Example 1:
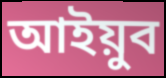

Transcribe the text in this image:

আইয়ুব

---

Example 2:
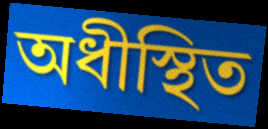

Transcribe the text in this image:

অধীস্থিত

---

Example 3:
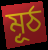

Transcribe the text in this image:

মূঠ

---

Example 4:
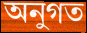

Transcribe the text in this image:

অনুগত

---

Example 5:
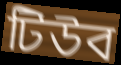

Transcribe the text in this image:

টিউব